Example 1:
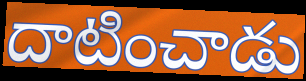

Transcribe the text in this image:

దాటించాడు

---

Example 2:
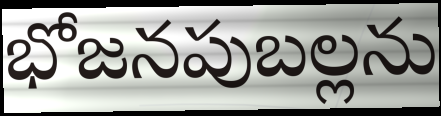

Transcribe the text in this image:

భోజనపుబల్లను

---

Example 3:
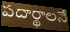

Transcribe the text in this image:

పదార్థాలనే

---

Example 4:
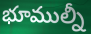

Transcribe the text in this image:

భూముల్నీ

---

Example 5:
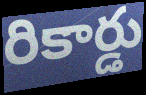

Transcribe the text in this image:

రికార్డు